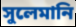
সুলেমানি